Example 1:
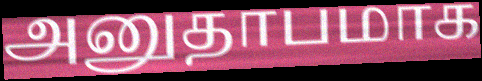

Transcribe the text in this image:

அனுதாபமாக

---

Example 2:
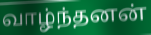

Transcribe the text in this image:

வாழ்ந்தனன்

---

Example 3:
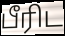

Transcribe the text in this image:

பீரிட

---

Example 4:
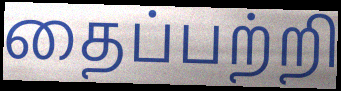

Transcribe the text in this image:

தைப்பற்றி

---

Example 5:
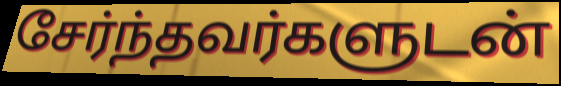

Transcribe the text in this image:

சேர்ந்தவர்களுடன்